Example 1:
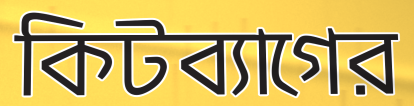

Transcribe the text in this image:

কিটব্যাগের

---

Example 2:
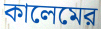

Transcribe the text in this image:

কালেমের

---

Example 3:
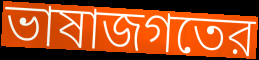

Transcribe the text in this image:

ভাষাজগতের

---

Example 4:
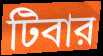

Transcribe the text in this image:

টিবার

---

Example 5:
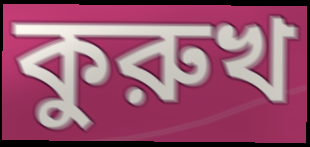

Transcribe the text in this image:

কুরুখ